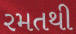
રમતથી